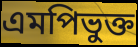
এমপিভুক্ত